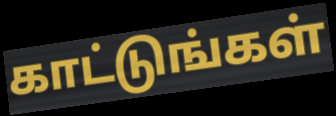
காட்டுங்கள்